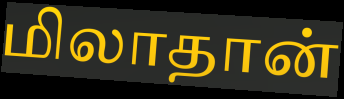
மிலாதான்